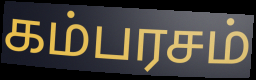
கம்பரசம்